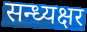
सन्ध्यक्षर